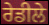
ਰੇਡੀਲੇ